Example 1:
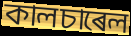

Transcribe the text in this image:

কালচাৰেল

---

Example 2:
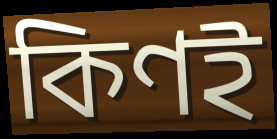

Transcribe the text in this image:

কিণই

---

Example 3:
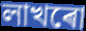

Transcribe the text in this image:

লাখৰো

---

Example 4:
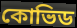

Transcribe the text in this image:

কোভিড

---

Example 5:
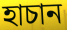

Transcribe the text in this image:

হাচান